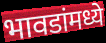
भावडांमध्ये